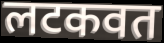
लटकवत